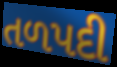
તળપદી